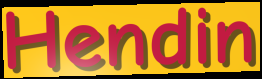
Hendin